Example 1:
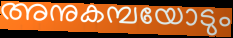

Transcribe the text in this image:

അനുകമ്പയോടും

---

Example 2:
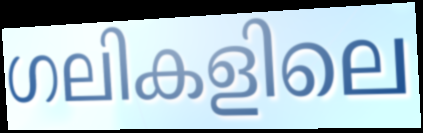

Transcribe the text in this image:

ഗലികളിലെ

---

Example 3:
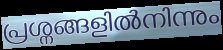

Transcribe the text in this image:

പ്രശ്നങ്ങളിൽനിന്നും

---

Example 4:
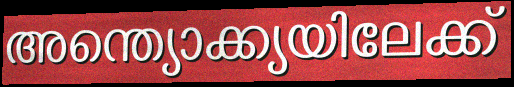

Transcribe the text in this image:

അന്ത്യൊക്ക്യയിലേക്ക്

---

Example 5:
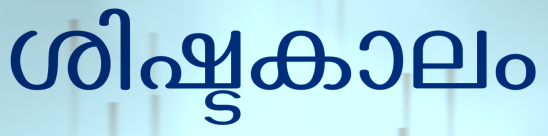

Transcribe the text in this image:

ശിഷ്ടകാലം